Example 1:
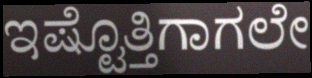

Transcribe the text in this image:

ಇಷ್ಟೊತ್ತಿಗಾಗಲೇ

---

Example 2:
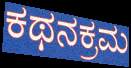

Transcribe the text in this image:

ಕಥನಕ್ರಮ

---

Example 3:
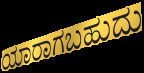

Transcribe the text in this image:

ಯಾರಾಗಬಹುದು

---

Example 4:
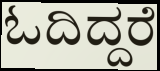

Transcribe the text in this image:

ಓದಿದ್ದರೆ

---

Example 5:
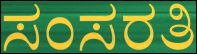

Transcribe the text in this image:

ಸಂಸರತಿ